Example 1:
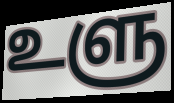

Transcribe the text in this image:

உளு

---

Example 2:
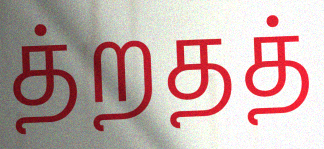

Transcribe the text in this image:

த்றதத்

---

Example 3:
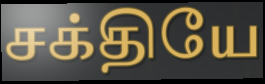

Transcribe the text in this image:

சக்தியே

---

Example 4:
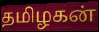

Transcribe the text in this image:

தமிழகன்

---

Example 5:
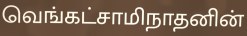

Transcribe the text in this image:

வெங்கட்சாமிநாதனின்